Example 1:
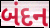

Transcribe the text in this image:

બંદન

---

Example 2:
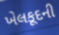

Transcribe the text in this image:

ખેલકૂદની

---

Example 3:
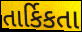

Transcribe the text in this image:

તાર્કિકતા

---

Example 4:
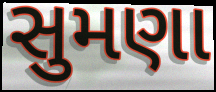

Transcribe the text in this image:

સુમણા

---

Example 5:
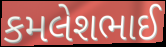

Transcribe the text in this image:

કમલેશભાઈ